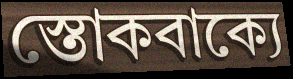
স্তোকবাক্যে